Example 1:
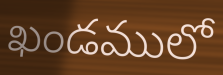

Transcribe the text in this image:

ఖండములో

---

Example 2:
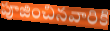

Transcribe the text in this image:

పూజించినవారికి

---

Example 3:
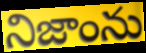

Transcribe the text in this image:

నిజాంను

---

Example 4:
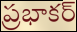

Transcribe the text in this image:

ప్రభాకర్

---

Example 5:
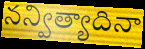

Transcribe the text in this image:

నన్విత్యాదినా